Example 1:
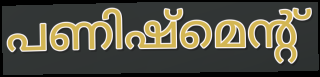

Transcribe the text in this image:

പണിഷ്മെന്റ്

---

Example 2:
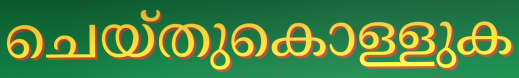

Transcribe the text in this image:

ചെയ്തുകൊള്ളുക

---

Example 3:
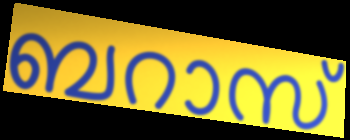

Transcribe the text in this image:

ബറാസ്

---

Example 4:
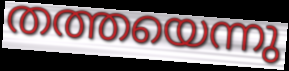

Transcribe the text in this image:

തത്തയെന്നു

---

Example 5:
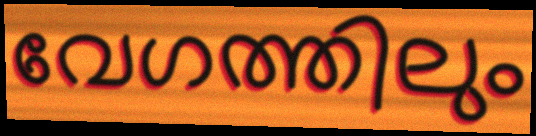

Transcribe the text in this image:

വേഗത്തിലും